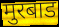
मुरबाड